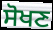
ਸੋਖਣ